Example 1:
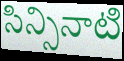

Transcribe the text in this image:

సిన్సినాటి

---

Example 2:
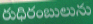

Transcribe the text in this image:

రుధిరంబులును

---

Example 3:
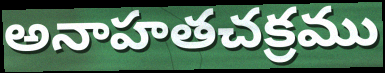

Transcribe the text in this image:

అనాహతచక్రము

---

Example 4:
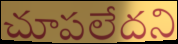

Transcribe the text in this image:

చూపలేదని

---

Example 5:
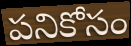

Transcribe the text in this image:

పనికోసం